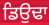
ਡਿਉਢਾ